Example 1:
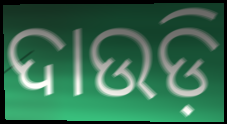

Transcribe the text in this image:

ଦାଉଡ଼ି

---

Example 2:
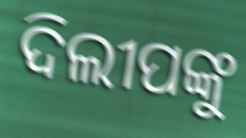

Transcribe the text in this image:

ଦିଲୀପଙ୍କୁ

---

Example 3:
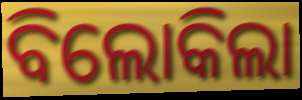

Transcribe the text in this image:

ବିଲୋକିଲା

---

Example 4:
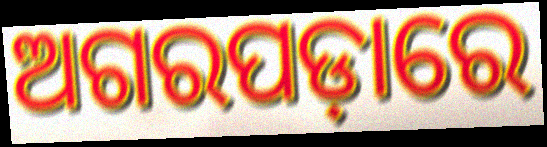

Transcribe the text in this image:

ଅଗରପଡ଼ାରେ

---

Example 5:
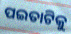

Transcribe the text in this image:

ପଇତାଟିକୁ